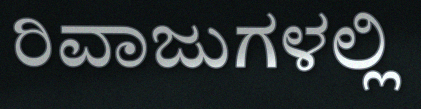
ರಿವಾಜುಗಳಲ್ಲಿ